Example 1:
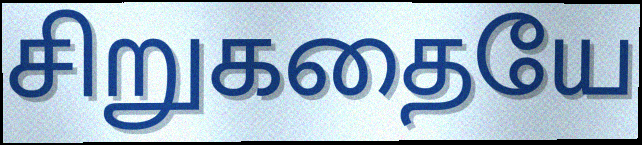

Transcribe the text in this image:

சிறுகதையே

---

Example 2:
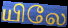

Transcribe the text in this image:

யிலே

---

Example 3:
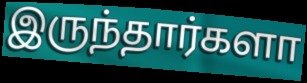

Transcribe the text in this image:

இருந்தார்களா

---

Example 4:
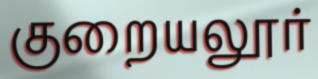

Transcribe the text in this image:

குறையலூர்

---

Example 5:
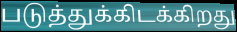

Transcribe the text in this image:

படுத்துக்கிடக்கிறது